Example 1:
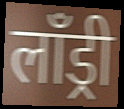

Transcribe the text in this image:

लॉंड्री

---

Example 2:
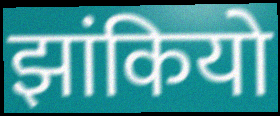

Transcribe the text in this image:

झांकियो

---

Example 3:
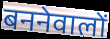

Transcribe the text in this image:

बननेवालों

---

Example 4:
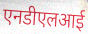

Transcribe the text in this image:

एनडीएलआई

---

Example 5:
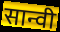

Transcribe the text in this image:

सान्वी